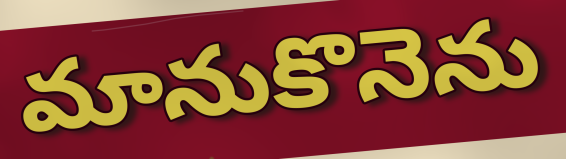
మానుకొనెను